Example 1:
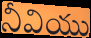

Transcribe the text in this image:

నీవియు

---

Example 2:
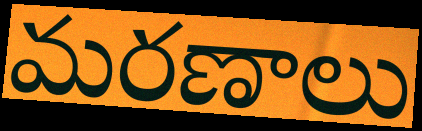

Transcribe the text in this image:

మరణాలు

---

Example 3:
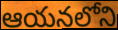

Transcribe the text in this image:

ఆయనలోని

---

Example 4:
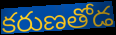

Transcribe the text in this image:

కరుణతోడ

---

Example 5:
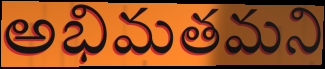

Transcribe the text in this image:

అభిమతమని